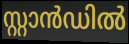
സ്റ്റാൻഡിൽ